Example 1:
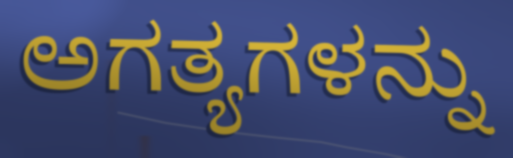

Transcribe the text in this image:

ಅಗತ್ಯಗಳನ್ನು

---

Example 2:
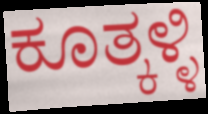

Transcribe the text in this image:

ಕೂತ್ಕಳ್ಳಿ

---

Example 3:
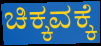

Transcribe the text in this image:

ಚಿಕ್ಕವಕ್ಕೆ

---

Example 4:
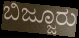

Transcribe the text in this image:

ಬಿಜ್ಜೂರು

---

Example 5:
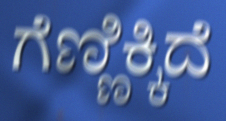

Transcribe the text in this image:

ಗೆಣ್ಣಿಕ್ಕಿದೆ